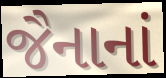
જૈનાનાં